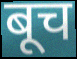
बूच